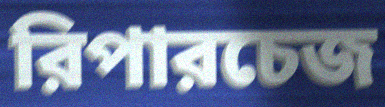
রিপারচেজ